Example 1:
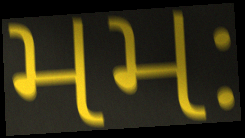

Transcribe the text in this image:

મમઃ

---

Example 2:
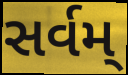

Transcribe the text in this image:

સર્વમ્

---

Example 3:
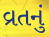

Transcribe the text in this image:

વ્રતનું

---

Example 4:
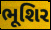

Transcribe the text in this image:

ભૂશિર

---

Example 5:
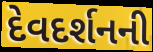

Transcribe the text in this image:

દેવદર્શનની